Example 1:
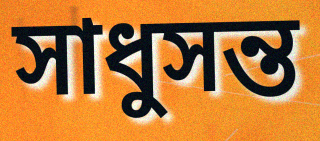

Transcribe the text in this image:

সাধুসন্ত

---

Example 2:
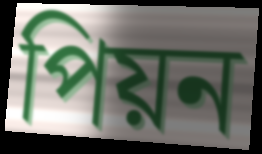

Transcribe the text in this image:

পিয়ন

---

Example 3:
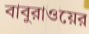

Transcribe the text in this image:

বাবুরাওয়ের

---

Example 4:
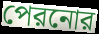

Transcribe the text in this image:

পেরনোর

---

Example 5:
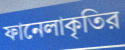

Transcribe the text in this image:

ফানেলাকৃতির